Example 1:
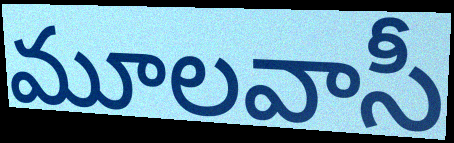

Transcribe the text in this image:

మూలవాసీ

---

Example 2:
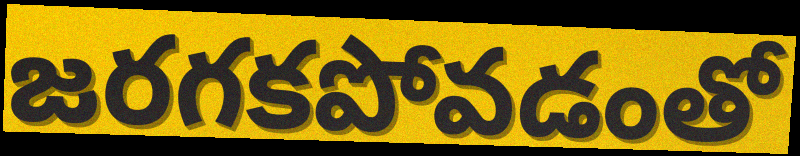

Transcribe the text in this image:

జరగకపోవడంతో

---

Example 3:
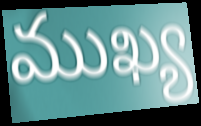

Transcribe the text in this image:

ముఖ్య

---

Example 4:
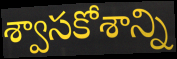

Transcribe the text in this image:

శ్వాసకోశాన్ని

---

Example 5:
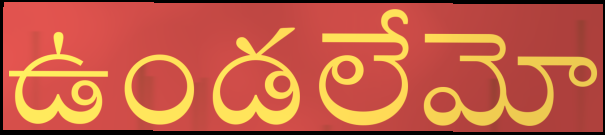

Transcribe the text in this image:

ఉండలేమో